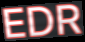
EDR